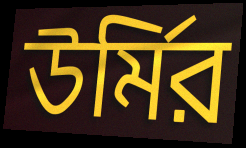
উর্মির